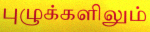
புழுக்களிலும்